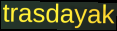
trasdayak